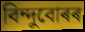
বিন্দুবোৰৰ